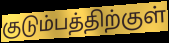
குடும்பத்திற்குள்